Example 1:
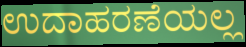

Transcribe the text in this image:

ಉದಾಹರಣೆಯಲ್ಲ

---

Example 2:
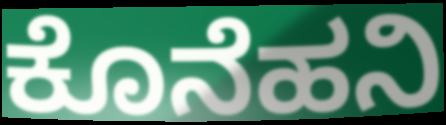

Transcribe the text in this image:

ಕೊನೆಹನಿ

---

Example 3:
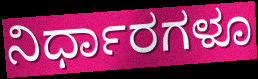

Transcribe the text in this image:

ನಿರ್ಧಾರಗಳೂ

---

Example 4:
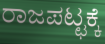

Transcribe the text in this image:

ರಾಜಪಟ್ಟಕ್ಕೆ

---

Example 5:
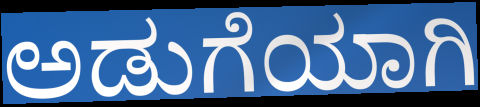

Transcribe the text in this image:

ಅಡುಗೆಯಾಗಿ